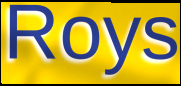
Roys